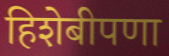
हिशेबीपणा